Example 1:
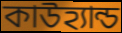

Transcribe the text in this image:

কাউহ্যান্ড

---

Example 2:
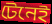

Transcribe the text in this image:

টেনেই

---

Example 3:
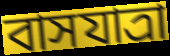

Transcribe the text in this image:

বাসযাত্রা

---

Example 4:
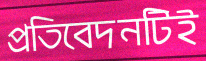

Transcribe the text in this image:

প্রতিবেদনটিই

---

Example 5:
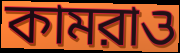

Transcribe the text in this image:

কামরাও